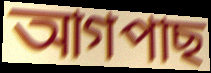
আগপাছ